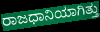
ರಾಜಧಾನಿಯಾಗಿತ್ತು